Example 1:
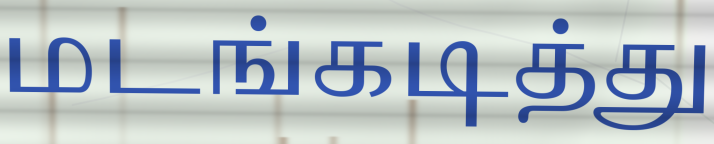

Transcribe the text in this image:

மடங்கடித்து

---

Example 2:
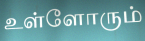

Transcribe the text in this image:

உள்ளோரும்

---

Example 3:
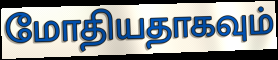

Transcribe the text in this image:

மோதியதாகவும்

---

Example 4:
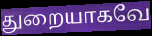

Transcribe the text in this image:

துறையாகவே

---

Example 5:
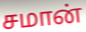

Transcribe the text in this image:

சமான்